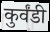
कुर्वंडी